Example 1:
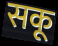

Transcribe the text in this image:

सकू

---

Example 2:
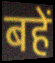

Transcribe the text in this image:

बहें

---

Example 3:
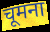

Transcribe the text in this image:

चूमना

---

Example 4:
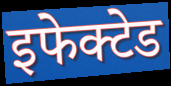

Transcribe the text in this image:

इफेक्टेड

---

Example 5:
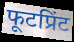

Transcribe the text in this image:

फूटप्रिंट